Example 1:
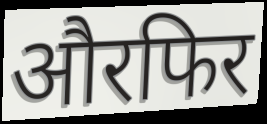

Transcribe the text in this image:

औरफिर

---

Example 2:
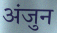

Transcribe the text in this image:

अंजुन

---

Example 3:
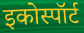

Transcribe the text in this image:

इकोस्पॉर्ट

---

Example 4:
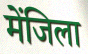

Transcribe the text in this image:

मेंजिला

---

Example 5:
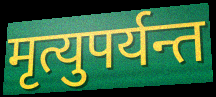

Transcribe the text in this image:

मृत्युपर्यन्त